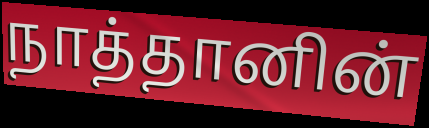
நாத்தானின்